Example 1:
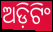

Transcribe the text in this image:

ଅଡ଼ିଟିଂ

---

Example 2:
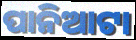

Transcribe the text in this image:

ପାନିଆଟା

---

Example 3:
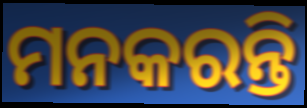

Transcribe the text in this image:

ମନକରନ୍ତି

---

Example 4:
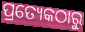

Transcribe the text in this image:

ପ୍ରତ୍ୟେକଠାରୁ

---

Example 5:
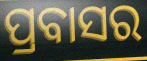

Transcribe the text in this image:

ପ୍ରବାସର